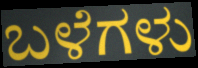
ಬಳೆಗಳು